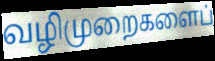
வழிமுறைகளைப்